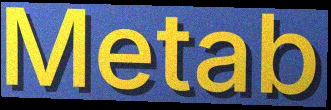
Metab